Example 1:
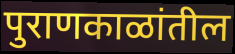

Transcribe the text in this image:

पुराणकाळांतील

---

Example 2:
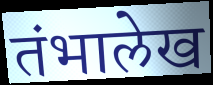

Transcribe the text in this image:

तंभालेख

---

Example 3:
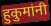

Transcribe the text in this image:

हुकुमांनी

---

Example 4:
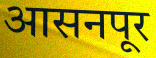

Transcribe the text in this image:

आसनपूर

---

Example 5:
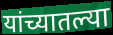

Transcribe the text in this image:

यांच्यातल्या